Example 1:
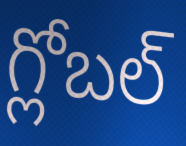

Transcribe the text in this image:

గ్లోబల్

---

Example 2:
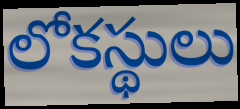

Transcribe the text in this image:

లోకస్థులు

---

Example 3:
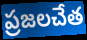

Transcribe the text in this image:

ప్రజలచేత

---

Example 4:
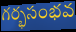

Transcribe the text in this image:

గర్భసంభవ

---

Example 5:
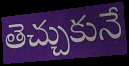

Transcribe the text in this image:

తెచ్చుకునే